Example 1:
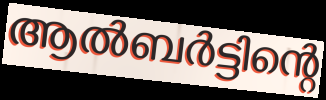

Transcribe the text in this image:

ആൽബർട്ടിന്റെ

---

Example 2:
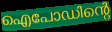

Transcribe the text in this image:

ഐപോഡിന്റെ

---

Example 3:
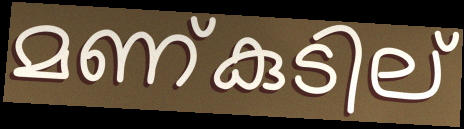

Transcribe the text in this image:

മണ്കുടില്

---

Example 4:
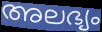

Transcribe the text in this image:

അലഭ്യം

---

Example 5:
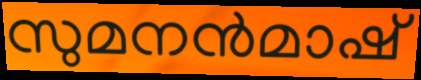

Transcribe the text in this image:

സുമനൻമാഷ്